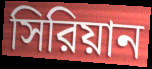
সিরিয়ান